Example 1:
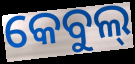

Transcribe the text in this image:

କେବୁଲ୍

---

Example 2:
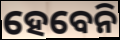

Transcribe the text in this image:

ହେବେନି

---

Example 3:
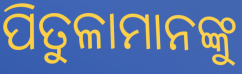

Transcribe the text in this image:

ପିତୁଳାମାନଙ୍କୁ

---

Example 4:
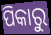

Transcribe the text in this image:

ପିକାରୁ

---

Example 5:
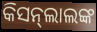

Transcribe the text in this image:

କିସନ୍‌ଲାଲଙ୍କ